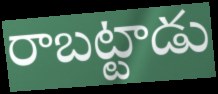
రాబట్టాడు